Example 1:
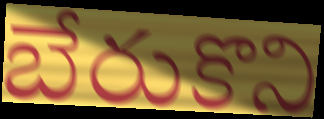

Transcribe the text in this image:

బేరుకొని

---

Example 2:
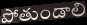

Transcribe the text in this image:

పోతుండాలి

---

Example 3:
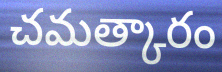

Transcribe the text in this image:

చమత్కారం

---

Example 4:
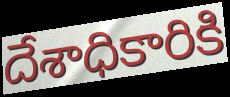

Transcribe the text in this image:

దేశాధికారికి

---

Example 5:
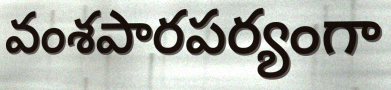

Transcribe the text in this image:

వంశపారపర్యంగా